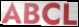
ABCL